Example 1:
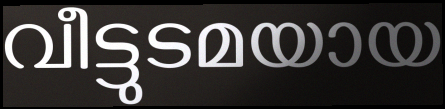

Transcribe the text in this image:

വീട്ടുടമയായ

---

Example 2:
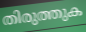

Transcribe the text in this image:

തിരുത്തുക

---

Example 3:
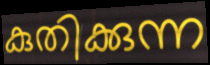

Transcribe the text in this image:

കുതിക്കുന്ന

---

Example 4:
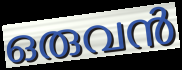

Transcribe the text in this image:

ഒരുവൻ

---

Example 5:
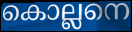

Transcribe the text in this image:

കൊല്ലനെ